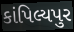
કાંપિલ્યપુર